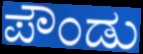
ಪೌಂಡು